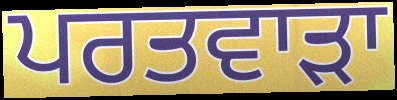
ਪਰਤਵਾੜਾ